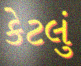
કેટલું